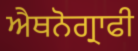
ਐਥਨੋਗ੍ਰਾਫੀ